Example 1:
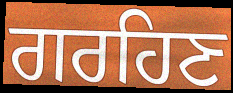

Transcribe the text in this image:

ਗਰਹਿਣ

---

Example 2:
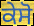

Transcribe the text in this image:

ਕੇਸੋ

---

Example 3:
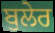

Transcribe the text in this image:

ਬੁਲੇਰ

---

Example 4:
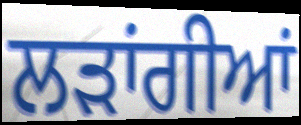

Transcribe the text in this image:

ਲੜਾਂਗੀਆਂ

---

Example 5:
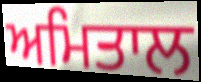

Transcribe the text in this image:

ਅਮਿਤਾਲ